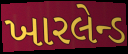
ખારલેન્ડ